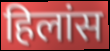
हिलांस